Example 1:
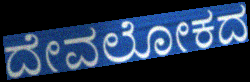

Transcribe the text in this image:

ದೇವಲೋಕದ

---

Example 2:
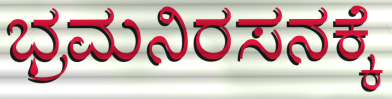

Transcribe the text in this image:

ಭ್ರಮನಿರಸನಕ್ಕೆ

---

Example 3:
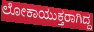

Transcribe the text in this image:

ಲೋಕಾಯುಕ್ತರಾಗಿದ್ದ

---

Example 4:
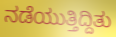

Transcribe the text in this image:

ನಡೆಯುತ್ತಿದ್ದಿತು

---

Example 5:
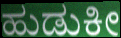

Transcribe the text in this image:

ಹುಡುಕೀ